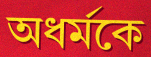
অধর্মকে